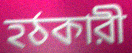
হঠকারী